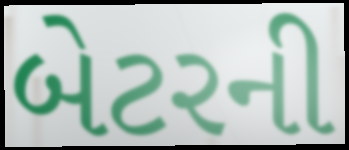
બેટરની